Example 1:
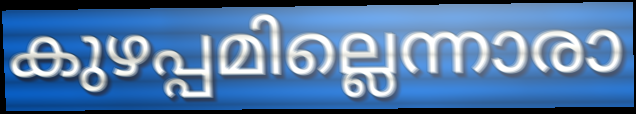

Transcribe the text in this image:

കുഴപ്പമില്ലെന്നാരാ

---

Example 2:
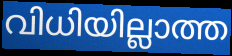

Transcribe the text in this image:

വിധിയില്ലാത്ത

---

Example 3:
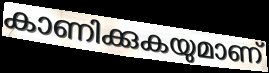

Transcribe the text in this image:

കാണിക്കുകയുമാണ്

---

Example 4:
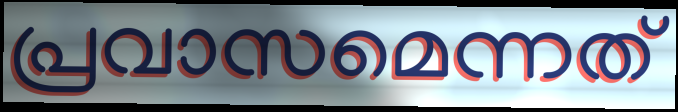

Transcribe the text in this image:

പ്രവാസമെന്നത്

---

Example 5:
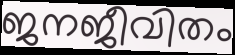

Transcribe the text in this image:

ജനജീവിതം